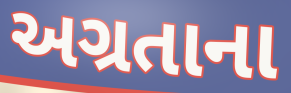
અગ્રતાના